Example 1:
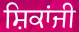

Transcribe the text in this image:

ਸ਼ਿਕਾਂਜੀ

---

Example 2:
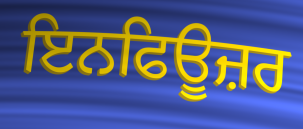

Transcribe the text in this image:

ਇਨਫਿਊਜ਼ਰ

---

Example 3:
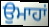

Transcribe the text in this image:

ਉਮਾਹਾਂ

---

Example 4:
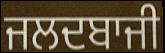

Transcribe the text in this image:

ਜਲਦਬਾਜੀ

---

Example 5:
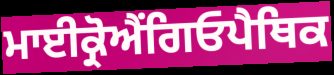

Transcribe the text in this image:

ਮਾਈਕ੍ਰੋਐਂਗਿਓਪੈਥਿਕ